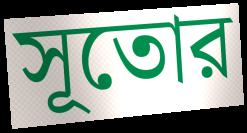
সূতোর